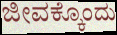
ಜೀವಕ್ಕೊಂದು